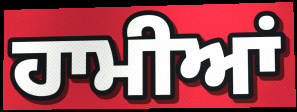
ਹਾਮੀਆਂ